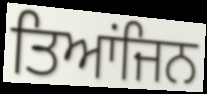
ਤਿਆਂਜਿਨ